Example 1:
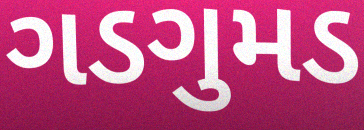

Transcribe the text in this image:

ગડગુમડ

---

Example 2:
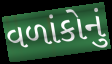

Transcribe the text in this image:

વળાંકોનું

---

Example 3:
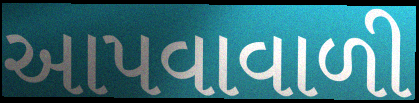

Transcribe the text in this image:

આપવાવાળી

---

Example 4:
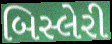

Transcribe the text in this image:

બિસ્લેરી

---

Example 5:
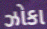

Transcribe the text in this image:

ઝોકા